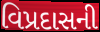
વિપ્રદાસની